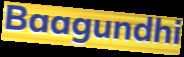
Baagundhi